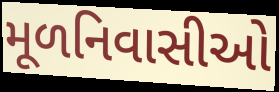
મૂળનિવાસીઓ